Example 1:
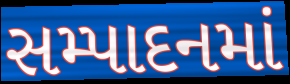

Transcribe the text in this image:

સમ્પાદનમાં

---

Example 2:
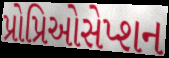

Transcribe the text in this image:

પ્રોપ્રિઓસેપ્શન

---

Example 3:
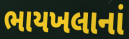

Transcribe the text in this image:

ભાયખલાનાં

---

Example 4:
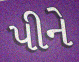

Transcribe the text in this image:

પીને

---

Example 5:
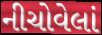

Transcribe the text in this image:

નીચોવેલાં